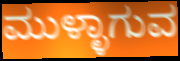
ಮುಳ್ಳಾಗುವ